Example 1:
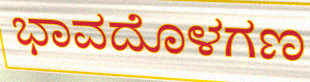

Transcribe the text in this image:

ಭಾವದೊಳಗಣ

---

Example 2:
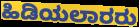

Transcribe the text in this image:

ಹಿಡಿಯಲಾರರು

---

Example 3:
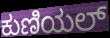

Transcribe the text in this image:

ಕುಣಿಯಲ್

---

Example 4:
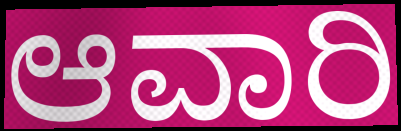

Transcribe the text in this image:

ಆವಾರಿ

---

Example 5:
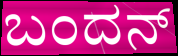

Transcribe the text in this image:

ಬಂದನ್